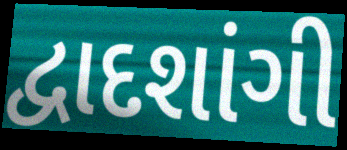
દ્વાદશાંગી